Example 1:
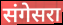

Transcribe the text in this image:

संगेसरा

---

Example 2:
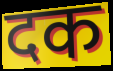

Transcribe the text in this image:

दक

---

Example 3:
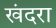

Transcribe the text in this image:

खंदरा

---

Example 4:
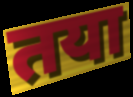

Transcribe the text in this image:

तया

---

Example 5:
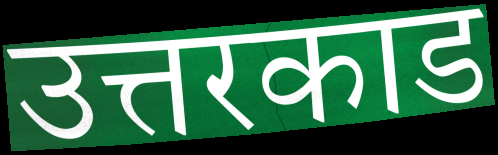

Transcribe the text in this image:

उत्तरकाड